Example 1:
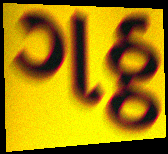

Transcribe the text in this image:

ગઠ્ઠ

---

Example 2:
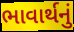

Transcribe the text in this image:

ભાવાર્થનું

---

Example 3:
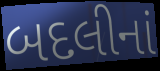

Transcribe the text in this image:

બદલીનાં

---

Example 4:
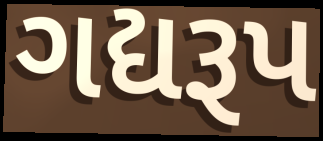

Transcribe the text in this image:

ગદ્યરૂપ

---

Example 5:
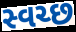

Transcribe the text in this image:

સ્વચ્છ